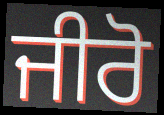
ਜੀਰੋ